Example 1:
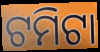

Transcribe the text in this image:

ଟମିଟା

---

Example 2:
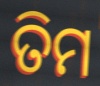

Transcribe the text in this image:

ତିମ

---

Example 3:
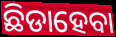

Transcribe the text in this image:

ଛିଡାହେବା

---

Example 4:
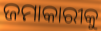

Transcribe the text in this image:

ଜମାକାରୀକୁ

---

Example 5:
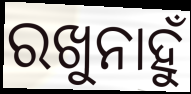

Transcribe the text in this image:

ରଖୁନାହୁଁ